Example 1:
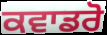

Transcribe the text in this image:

ਕਵਾਡਰੋ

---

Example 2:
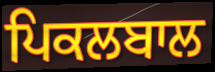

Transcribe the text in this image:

ਪਿਕਲਬਾਲ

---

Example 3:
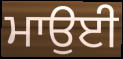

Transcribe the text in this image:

ਮਾਉਈ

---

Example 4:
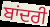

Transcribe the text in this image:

ਬਾਂਦਰੀ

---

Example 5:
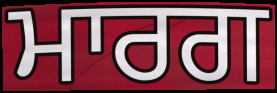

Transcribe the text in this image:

ਮਾਰਗ